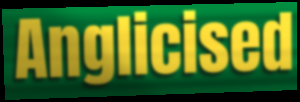
Anglicised